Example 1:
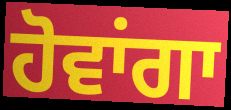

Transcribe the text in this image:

ਹੋਵਾਂਗਾ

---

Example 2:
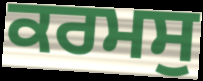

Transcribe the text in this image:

ਕਰਮਸੁ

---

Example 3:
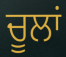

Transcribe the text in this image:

ਚੂਲਾਂ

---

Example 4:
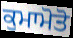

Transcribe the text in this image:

ਕੁਮਾਮੋਤੋ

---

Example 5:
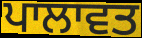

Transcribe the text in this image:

ਪਾਲਾਵਤ